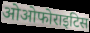
ओओफोराइटिस